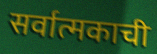
सर्वात्मकाची